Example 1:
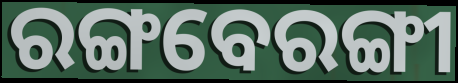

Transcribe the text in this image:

ରଙ୍ଗବେରଙ୍ଗୀ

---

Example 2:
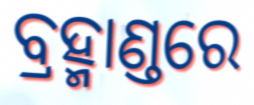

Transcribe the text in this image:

ବ୍ରହ୍ମାଣ୍ଡରେ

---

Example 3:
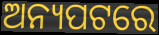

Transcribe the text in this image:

ଅନ୍ୟପଟରେ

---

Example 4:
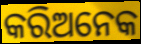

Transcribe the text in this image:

କରିଅନେକ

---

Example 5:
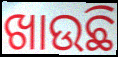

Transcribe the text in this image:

ଖାଉଛି